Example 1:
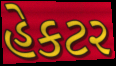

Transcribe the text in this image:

હેકટર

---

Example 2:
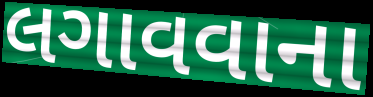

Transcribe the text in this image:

લગાવવાના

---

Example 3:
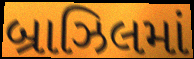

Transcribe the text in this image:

બ્રાઝિલમાં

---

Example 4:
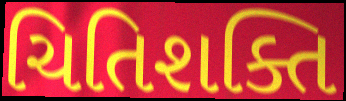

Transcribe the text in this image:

ચિતિશક્તિ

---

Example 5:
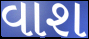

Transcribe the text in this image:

વાશ